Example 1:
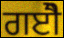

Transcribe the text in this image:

ਗਈੈ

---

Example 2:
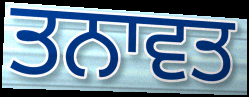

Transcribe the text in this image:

ਤਨਾਵਤ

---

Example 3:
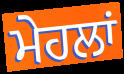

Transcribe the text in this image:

ਮੇਹਲਾਂ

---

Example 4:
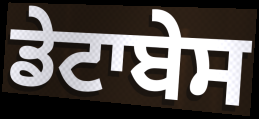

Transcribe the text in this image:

ਡੇਟਾਬੇਸ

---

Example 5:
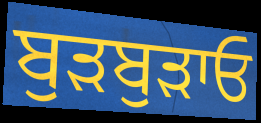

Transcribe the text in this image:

ਬੁੜਬੁੜਾਓ